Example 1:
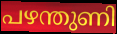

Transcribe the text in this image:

പഴന്തുണി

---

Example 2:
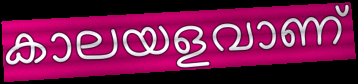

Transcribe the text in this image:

കാലയളവാണ്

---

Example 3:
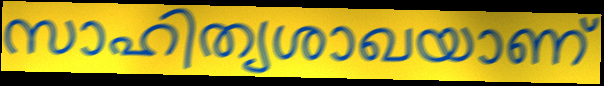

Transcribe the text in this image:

സാഹിത്യശാഖയാണ്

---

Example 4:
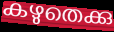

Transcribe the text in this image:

കഴുതെക്കു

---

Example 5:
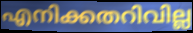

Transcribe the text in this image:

എനിക്കതറിവില്ല